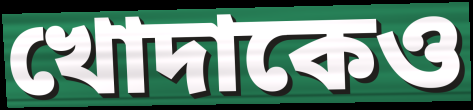
খোদাকেও